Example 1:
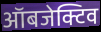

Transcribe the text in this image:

ऑबजेक्टिव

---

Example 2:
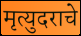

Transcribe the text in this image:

मृत्युदराचे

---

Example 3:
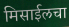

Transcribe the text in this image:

मिसाईलचा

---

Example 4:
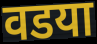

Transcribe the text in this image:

वडया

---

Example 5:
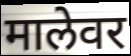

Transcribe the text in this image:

मालेवर